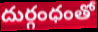
దుర్గంధంతో